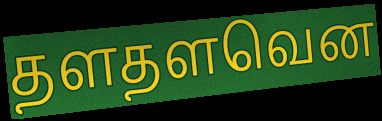
தளதளவென